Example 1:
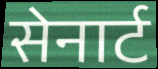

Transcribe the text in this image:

सेनार्ट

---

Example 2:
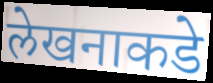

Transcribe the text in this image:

लेखनाकडे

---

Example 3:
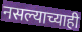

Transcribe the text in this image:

नसल्याच्याही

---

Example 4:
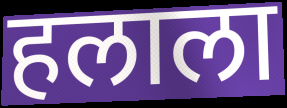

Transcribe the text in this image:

हलाला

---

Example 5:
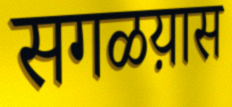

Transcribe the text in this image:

सगळय़ास